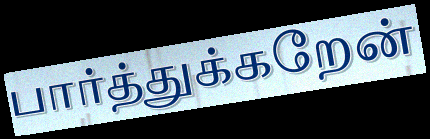
பார்த்துக்கறேன்